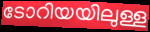
ടോറിയയിലുള്ള